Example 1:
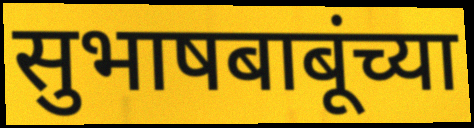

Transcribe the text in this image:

सुभाषबाबूंच्या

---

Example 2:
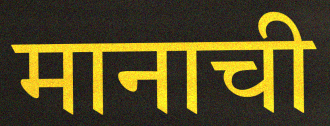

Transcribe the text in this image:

मानाची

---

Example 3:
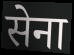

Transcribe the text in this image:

सेना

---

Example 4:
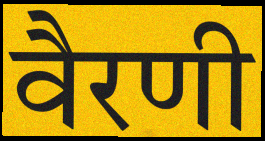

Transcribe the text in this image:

वैरणी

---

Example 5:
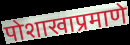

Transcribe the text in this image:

पोशाखाप्रमाणे